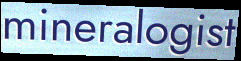
mineralogist